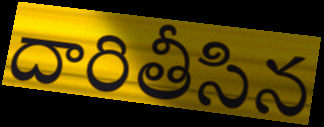
దారితీసిన